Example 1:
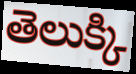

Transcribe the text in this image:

తెలుక్కి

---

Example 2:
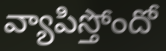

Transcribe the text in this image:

వ్యాపిస్తోందో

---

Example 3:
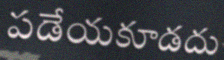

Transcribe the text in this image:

పడేయకూడదు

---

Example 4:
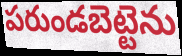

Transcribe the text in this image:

పరుండబెట్టెను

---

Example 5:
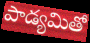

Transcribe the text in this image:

పాడ్యమితో